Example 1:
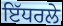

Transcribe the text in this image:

ਇੱਧਰਲੇ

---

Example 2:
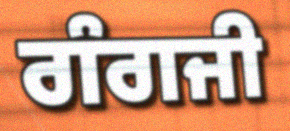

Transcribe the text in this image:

ਗੰਗਜੀ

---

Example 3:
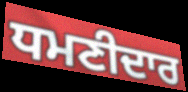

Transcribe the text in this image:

ਧਮਣੀਦਾਰ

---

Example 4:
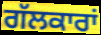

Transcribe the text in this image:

ਗੱਲਕਾਰਾਂ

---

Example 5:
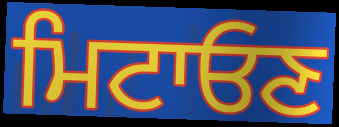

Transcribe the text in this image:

ਮਿਟਾਓਣ